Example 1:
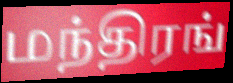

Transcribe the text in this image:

மந்திரங்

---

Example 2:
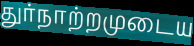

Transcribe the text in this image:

துர்நாற்றமுடைய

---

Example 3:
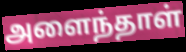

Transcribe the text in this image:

அளைந்தாள்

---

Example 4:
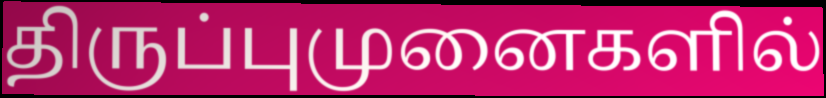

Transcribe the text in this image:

திருப்புமுனைகளில்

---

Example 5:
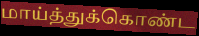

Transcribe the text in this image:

மாய்த்துக்கொண்ட